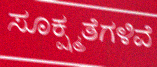
ಸೂಕ್ಷ್ಮತೆಗಳಿವೆ